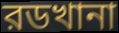
রডখানা